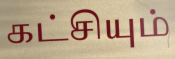
கட்சியும்